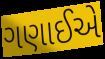
ગણાઈએ